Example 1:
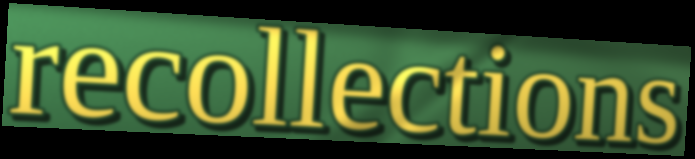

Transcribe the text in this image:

recollections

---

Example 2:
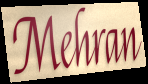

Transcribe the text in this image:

Mehran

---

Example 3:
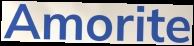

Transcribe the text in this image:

Amorite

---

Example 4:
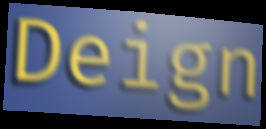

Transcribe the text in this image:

Deign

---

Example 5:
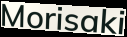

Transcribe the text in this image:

Morisaki